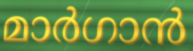
മാർഗാൻ